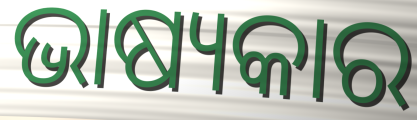
ଭାଷ୍ୟକାର